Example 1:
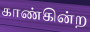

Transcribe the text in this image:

காண்கின்ற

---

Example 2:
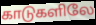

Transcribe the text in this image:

காடுகளிலே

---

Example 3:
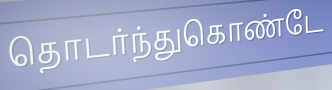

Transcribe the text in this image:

தொடர்ந்துகொண்டே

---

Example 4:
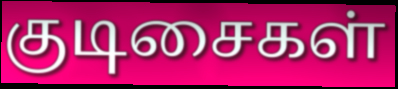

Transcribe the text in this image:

குடிசைகள்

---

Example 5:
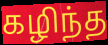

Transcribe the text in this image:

கழிந்த